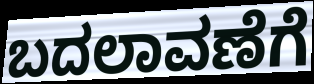
ಬದಲಾವಣೆಗೆ